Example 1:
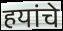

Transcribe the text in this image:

हयांचे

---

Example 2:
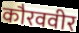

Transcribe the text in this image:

कौरववीर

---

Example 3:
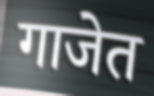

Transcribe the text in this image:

गाजेत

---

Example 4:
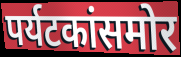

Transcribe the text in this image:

पर्यटकांसमोर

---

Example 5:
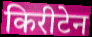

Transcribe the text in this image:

किरीटेन